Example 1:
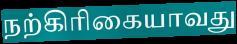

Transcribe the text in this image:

நற்கிரிகையாவது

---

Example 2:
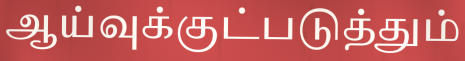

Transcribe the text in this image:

ஆய்வுக்குட்படுத்தும்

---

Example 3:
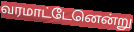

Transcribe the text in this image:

வரமாட்டேனென்று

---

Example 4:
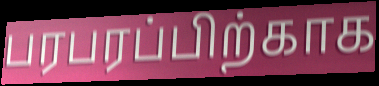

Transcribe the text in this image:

பரபரப்பிற்காக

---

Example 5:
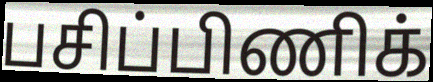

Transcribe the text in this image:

பசிப்பிணிக்